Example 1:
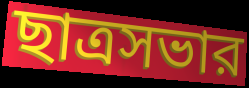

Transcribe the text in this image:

ছাত্রসভার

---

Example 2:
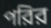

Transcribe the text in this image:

পরির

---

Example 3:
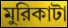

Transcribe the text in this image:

মুরিকাটা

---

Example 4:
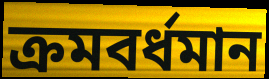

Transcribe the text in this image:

ক্রমবর্ধমান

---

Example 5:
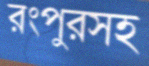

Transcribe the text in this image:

রংপুরসহ